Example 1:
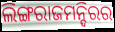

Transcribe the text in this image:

ଲିଙ୍ଗରାଜମନ୍ଦିରର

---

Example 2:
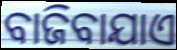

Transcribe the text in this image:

ବାଜିବାଯାଏ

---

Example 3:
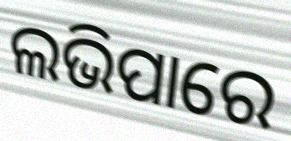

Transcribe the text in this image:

ଲଭିପାରେ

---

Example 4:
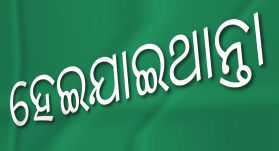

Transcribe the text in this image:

ହେଇଯାଇଥାନ୍ତା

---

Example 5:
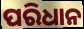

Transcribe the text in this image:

ପରିଧାନ